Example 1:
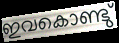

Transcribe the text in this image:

ഇവകൊണ്ടു്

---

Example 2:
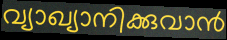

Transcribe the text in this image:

വ്യാഖ്യാനിക്കുവാൻ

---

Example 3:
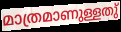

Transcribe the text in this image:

മാത്രമാണുള്ളതു്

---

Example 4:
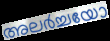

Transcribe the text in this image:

അലർച്ചയോ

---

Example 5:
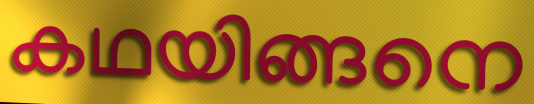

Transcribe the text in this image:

കഥയിങ്ങനെ